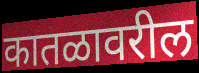
कातळावरील